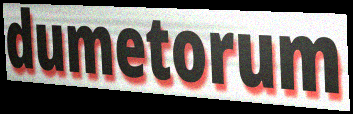
dumetorum